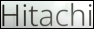
Hitachi